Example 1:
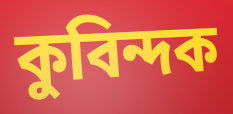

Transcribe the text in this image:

কুবিন্দক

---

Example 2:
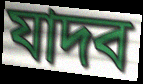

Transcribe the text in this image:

যাদব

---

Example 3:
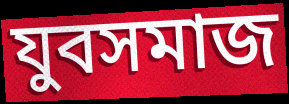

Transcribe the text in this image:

যুবসমাজ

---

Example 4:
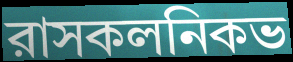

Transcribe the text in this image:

রাসকলনিকভ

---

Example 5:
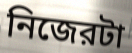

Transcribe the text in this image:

নিজেরটা